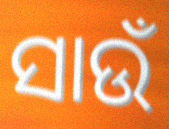
ସାଉଁ